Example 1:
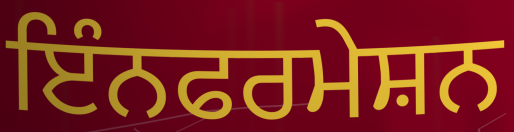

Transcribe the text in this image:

ਇੰਨਫਰਮੇਸ਼ਨ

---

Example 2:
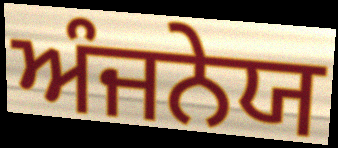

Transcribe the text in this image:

ਅੰਜਨੇਯ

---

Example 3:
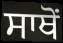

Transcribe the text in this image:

ਸਾਥੋਂ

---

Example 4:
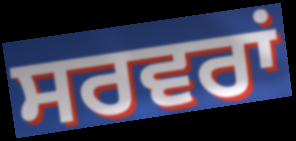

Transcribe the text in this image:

ਸਰਵਰਾਂ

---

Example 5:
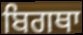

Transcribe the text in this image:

ਬਿਗਥਾ